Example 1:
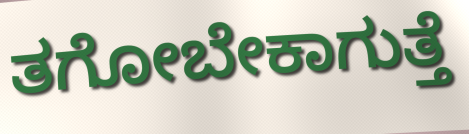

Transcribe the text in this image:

ತಗೋಬೇಕಾಗುತ್ತೆ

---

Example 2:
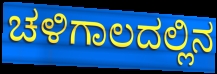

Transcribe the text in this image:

ಚಳಿಗಾಲದಲ್ಲಿನ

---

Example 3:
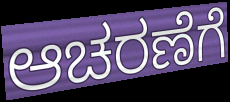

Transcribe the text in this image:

ಆಚರಣೆಗೆ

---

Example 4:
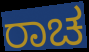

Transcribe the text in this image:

ರಾಚ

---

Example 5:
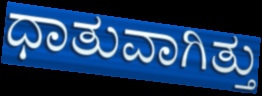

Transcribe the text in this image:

ಧಾತುವಾಗಿತ್ತು